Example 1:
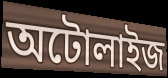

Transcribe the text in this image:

অটোলাইজ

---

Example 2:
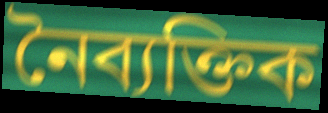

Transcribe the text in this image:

নৈব্যক্তিক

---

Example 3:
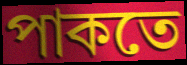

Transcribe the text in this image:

পাকতে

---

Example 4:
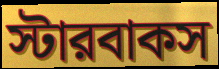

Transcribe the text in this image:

স্টারবাকস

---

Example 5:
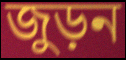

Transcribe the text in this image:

জুড়ন